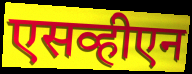
एसव्हीएन